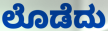
ಲೊಡೆದು